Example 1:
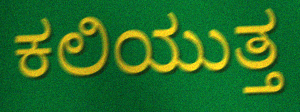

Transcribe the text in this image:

ಕಲಿಯುತ್ತ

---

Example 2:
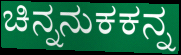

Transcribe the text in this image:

ಚಿನ್ನನುಕಕನ್ನ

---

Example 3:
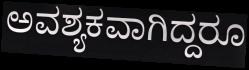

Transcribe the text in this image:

ಅವಶ್ಯಕವಾಗಿದ್ದರೂ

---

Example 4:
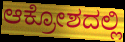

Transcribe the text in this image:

ಆಕ್ರೋಶದಲ್ಲಿ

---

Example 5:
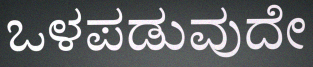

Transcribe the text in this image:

ಒಳಪಡುವುದೇ